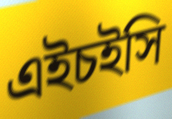
এইচইসি